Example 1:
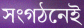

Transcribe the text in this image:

সংগঠনেই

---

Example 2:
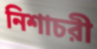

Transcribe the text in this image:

নিশাচরী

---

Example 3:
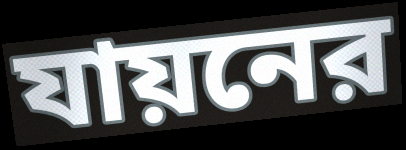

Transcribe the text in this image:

যায়নের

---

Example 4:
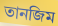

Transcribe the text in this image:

তানজিম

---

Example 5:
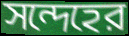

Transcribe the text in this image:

সন্দেহের